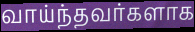
வாய்ந்தவர்களாக